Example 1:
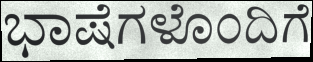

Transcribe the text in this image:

ಭಾಷೆಗಳೊಂದಿಗೆ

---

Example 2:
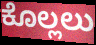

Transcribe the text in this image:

ಕೊಲ್ಲಲು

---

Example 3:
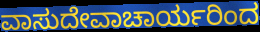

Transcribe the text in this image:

ವಾಸುದೇವಾಚಾರ್ಯರಿಂದ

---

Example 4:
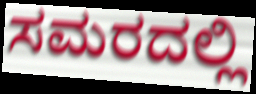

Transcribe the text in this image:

ಸಮರದಲ್ಲಿ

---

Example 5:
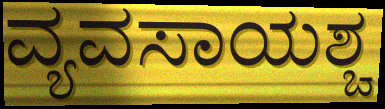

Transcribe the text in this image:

ವ್ಯವಸಾಯಶ್ಚ